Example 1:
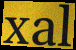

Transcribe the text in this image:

xal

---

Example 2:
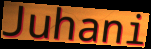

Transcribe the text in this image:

Juhani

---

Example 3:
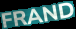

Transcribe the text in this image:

FRAND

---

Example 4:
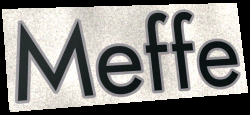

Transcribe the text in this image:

Meffe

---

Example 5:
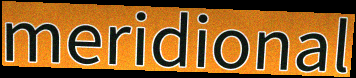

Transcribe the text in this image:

meridional